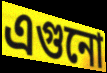
এগুনো